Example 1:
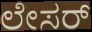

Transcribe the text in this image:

ಲೇಸರ್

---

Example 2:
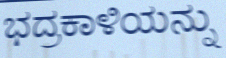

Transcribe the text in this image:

ಭದ್ರಕಾಳಿಯನ್ನು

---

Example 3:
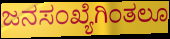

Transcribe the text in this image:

ಜನಸಂಖ್ಯೆಗಿಂತಲೂ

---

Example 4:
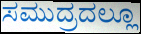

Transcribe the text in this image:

ಸಮುದ್ರದಲ್ಲೂ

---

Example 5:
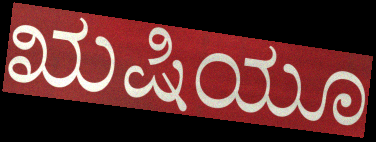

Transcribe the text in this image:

ಋಷಿಯೂ